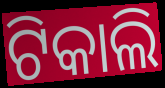
ଟିକାଲି